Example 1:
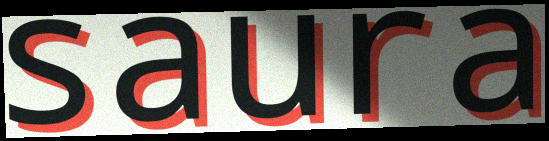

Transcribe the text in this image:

saura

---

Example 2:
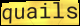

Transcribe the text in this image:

quails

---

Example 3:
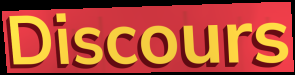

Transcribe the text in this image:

Discours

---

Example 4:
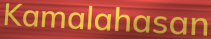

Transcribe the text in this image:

Kamalahasan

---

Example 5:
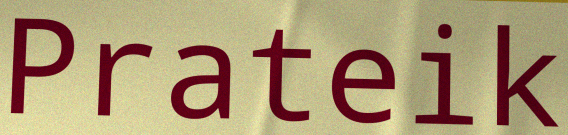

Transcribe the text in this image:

Prateik